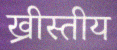
ख्रीस्तीय